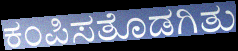
ಕಂಪಿಸತೊಡಗಿತು